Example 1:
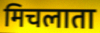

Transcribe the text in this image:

मिचलाता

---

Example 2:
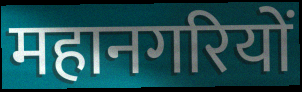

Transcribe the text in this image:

महानगरियों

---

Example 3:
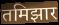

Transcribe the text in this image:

तमिझार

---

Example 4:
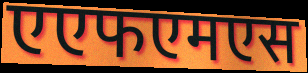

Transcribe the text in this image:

एएफएमएस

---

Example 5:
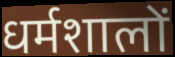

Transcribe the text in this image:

धर्मशालों